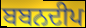
ਬਬਨਦੀਪ